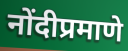
नोंदीप्रमाणे